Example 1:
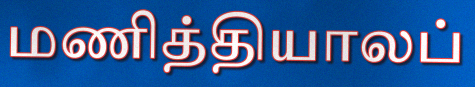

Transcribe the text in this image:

மணித்தியாலப்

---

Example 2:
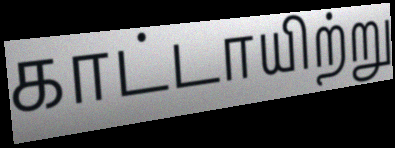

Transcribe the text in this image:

காட்டாயிற்று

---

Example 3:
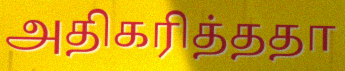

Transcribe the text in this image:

அதிகரித்ததா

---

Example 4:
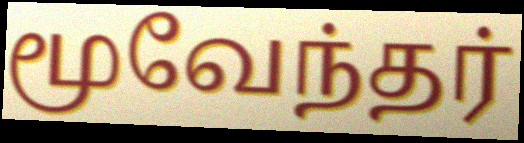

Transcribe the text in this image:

மூவேந்தர்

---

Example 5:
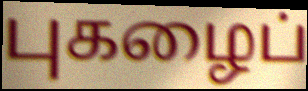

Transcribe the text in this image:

புகழைப்